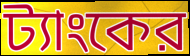
ট্যাংকের